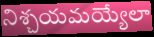
నిశ్చయమయ్యేలా